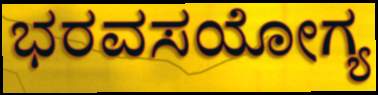
ಭರವಸಯೋಗ್ಯ